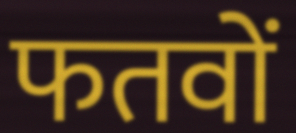
फतवों